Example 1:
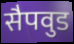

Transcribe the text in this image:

सैपवुड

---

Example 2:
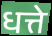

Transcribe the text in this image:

धत्ते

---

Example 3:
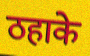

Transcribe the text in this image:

ठहाके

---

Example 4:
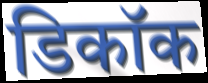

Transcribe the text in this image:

डिकॉक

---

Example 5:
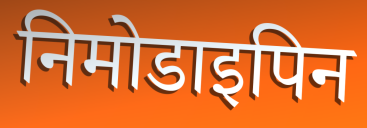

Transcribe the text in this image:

निमोडाइपिन